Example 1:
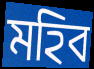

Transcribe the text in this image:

মহিব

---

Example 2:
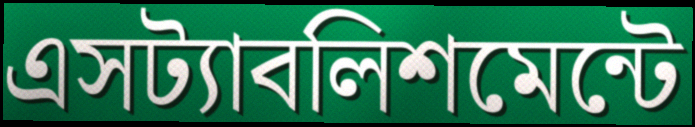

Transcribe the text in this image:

এসট্যাবলিশমেন্টে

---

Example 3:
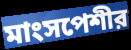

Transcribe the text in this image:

মাংসপেশীর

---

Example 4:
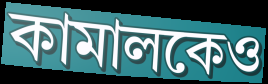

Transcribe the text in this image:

কামালকেও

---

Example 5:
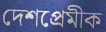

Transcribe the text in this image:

দেশপ্রেমীক